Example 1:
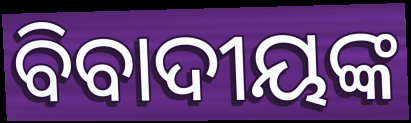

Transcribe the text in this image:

ବିବାଦୀୟଙ୍କ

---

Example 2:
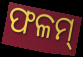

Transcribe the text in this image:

ଫଳମ୍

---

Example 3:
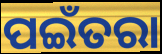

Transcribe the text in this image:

ପଇଁତରା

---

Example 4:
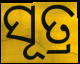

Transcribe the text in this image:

ସୂତ୍ର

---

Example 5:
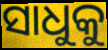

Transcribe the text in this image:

ସାଧୁକୁ